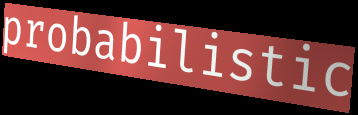
probabilistic